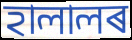
হালালৰ